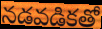
నడవడికతో